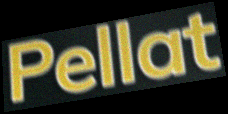
Pellat